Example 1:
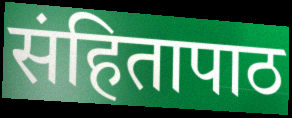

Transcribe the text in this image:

संहितापाठ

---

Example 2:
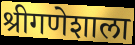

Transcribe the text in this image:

श्रीगणेशाला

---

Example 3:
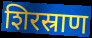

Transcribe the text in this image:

शिरस्राण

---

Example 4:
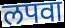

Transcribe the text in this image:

लपवा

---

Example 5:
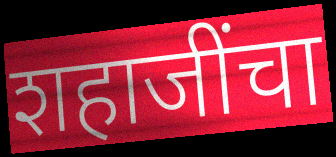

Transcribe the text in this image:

शहाजींचा